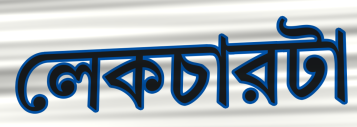
লেকচারটা